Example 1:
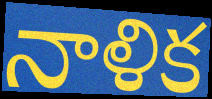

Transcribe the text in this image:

నాళిక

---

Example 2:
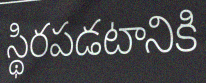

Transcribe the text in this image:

స్థిరపడటానికి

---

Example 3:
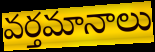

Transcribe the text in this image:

వర్తమానాలు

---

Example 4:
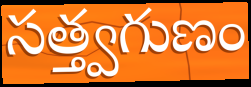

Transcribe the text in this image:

సత్త్వగుణం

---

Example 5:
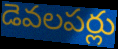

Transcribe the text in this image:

డెవలపర్లు